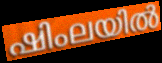
ഷിംലയിൽ